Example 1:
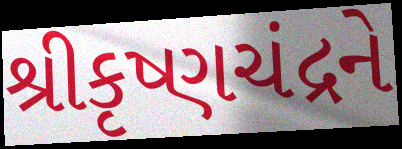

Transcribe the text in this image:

શ્રીકૃષ્ણચંદ્રને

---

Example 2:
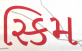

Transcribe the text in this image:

સ્કિમ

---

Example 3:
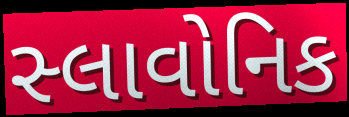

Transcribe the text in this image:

સ્લાવોનિક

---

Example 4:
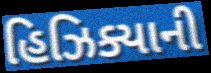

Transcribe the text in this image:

હિઝિક્યાની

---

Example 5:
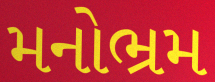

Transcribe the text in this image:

મનોભ્રમ